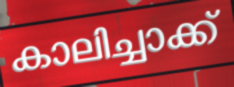
കാലിച്ചാക്ക്